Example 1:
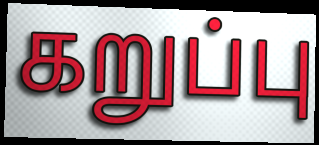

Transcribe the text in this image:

கறுப்பு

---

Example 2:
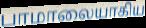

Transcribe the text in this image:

பாமாலையாகிய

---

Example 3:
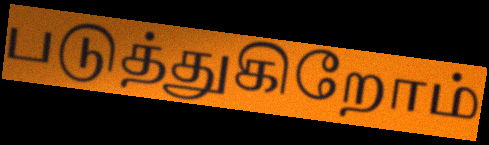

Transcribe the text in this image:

படுத்துகிறோம்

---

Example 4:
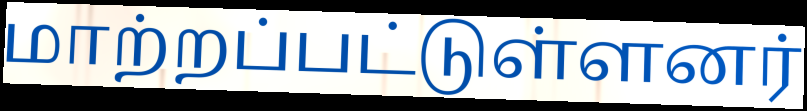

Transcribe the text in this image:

மாற்றப்பட்டுள்ளனர்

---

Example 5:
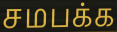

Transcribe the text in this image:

சமபக்க